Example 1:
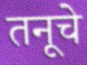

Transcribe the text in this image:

तनूचे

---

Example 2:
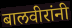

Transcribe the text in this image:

बालवीरांनी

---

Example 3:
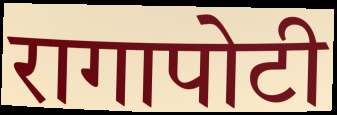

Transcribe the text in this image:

रागापोटी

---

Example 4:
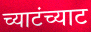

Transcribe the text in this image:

च्याटंच्याट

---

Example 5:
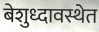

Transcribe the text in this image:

बेशुध्दावस्थेत